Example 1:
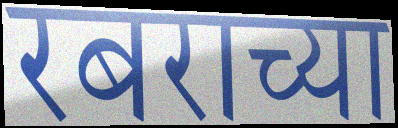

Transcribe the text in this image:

रबराच्या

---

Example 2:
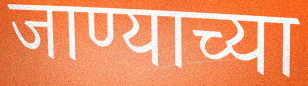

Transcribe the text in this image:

जाण्याच्या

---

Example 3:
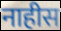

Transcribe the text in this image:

नाहीस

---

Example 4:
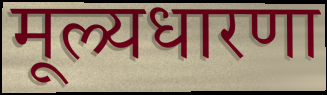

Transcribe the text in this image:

मूल्यधारणा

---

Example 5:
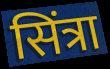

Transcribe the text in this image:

सिंत्रा